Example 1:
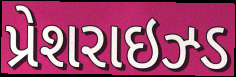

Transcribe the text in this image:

પ્રેશરાઇઝ્ડ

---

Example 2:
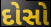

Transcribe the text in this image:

દોસો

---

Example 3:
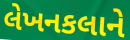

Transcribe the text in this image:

લેખનકલાને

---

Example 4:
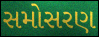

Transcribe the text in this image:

સમોસરણ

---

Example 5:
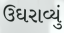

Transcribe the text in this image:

ઉઘરાવ્યું